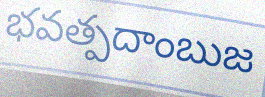
భవత్పదాంబుజ